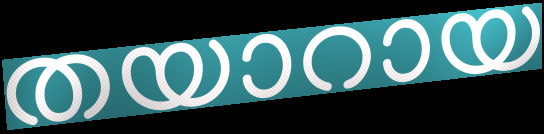
തയാറായ